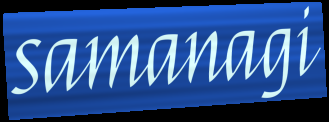
samanagi